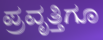
ಪ್ರವೃತ್ತಿಗೂ